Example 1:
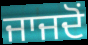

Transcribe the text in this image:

ਜਾਜਦੋਂ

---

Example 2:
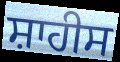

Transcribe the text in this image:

ਸ਼ਾਹੀਸ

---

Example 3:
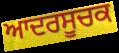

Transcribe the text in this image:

ਆਦਰਸੂਚਕ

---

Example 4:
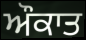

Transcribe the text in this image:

ਔਕਾਤ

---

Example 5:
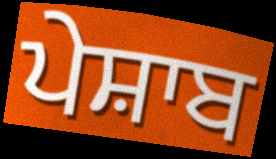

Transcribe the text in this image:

ਪੇਸ਼ਾਬ